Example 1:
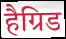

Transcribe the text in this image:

हैग्रिड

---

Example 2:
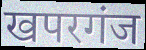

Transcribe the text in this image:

खपरगंज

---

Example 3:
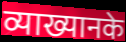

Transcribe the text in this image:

व्याख्यानके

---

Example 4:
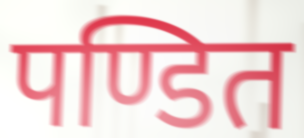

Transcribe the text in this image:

पण्डित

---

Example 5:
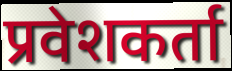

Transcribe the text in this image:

प्रवेशकर्ता